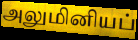
அலுமினியப்